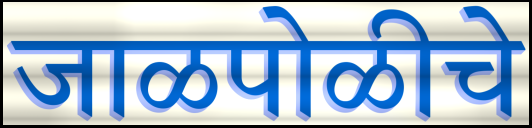
जाळपोळीचे